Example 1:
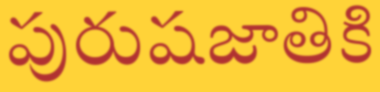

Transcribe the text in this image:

పురుషజాతికి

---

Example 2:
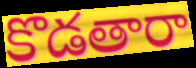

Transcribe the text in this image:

కొడతారా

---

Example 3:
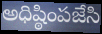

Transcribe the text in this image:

అధిష్ఠింపజేసి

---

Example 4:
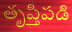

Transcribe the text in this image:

తృప్తిపడి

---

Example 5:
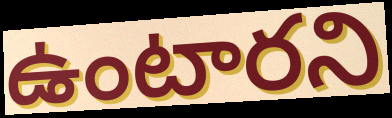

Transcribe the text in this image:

ఉంటారని